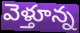
వెళ్తూన్న